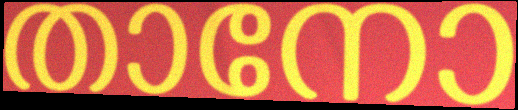
താനോ